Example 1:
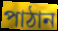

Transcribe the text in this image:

পাঠান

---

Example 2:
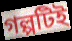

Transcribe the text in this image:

গল্পটিই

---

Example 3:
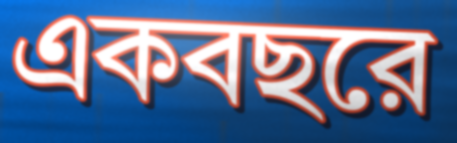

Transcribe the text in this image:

একবছরে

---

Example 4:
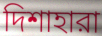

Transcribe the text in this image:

দিশাহারা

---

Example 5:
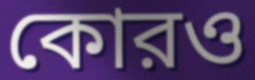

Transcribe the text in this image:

কোরও